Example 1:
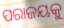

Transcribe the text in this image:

ପରାଜୟକୁ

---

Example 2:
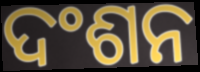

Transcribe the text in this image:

ଦଂଶନ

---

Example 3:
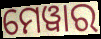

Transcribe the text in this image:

ମେୱାର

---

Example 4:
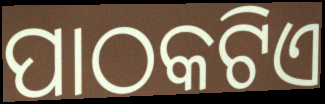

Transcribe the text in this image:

ପାଠକଟିଏ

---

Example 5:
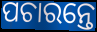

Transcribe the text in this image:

ପଚାରନ୍ତେ